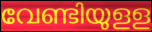
വേണ്ടിയുളള